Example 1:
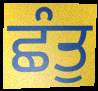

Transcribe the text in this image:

ਛੰਤੁ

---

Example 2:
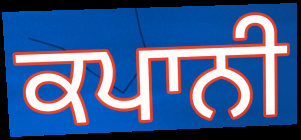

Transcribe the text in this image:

ਕਪਾਨੀ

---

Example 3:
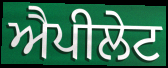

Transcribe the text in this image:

ਐਪੀਲੇਟ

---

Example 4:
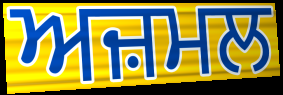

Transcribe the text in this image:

ਅਜ਼ਮਲ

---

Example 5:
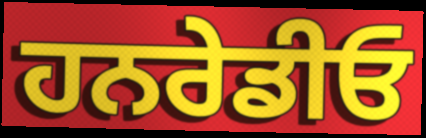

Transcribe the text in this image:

ਹਨਰੇਡੀਓ